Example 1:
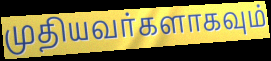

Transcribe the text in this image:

முதியவர்களாகவும்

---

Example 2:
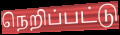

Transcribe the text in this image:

நெறிப்பட்டு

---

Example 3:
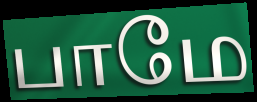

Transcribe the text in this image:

பாமே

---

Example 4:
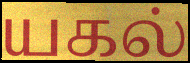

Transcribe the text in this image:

யகல்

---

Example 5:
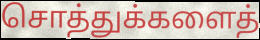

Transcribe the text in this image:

சொத்துக்களைத்